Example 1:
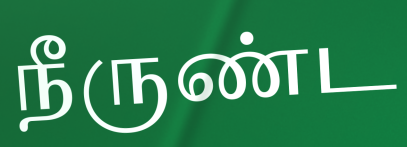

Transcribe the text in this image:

நீருண்ட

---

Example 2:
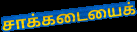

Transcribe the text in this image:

சாக்கடையைக்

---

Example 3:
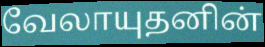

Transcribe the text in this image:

வேலாயுதனின்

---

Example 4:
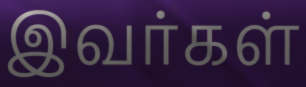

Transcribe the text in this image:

இவர்கள்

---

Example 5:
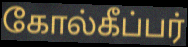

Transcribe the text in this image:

கோல்கீப்பர்